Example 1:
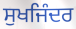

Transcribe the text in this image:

ਸੁਖਜਿੰਦਰ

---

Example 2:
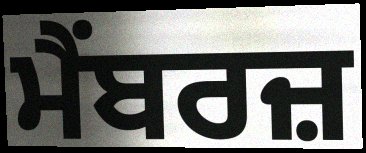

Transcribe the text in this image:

ਮੈਂਬਰਜ਼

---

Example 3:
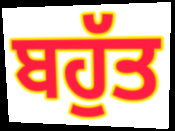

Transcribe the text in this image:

ਬਹੁੱਤ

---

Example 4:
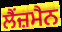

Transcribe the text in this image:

ਲੈਂਜ਼ਮੈਨ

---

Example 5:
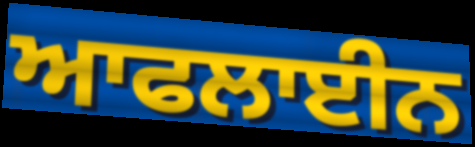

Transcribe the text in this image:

ਆਫਲਾਈਨ